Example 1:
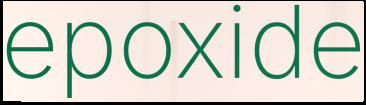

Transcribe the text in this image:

epoxide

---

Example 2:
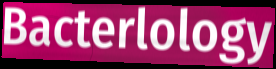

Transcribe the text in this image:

Bacterlology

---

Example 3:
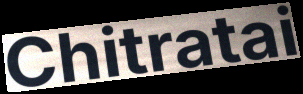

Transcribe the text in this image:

Chitratai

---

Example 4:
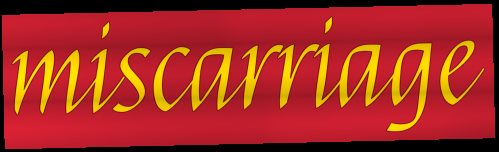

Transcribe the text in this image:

miscarriage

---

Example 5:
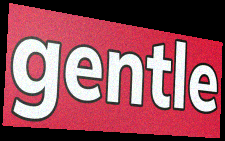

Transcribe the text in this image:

gentle